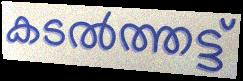
കടൽത്തട്ട്